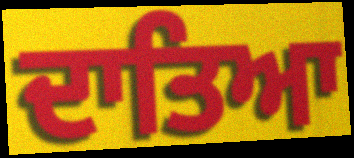
ਦਾਤਿਆ